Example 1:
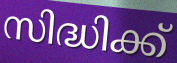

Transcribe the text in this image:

സിദ്ധിക്ക്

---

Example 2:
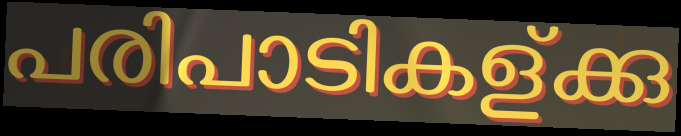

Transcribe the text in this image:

പരിപാടികള്ക്കു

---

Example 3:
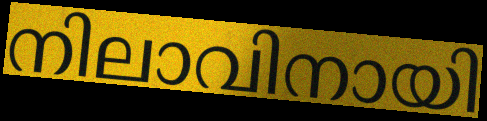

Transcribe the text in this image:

നിലാവിനായി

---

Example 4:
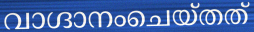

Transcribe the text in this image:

വാഗ്ദാനംചെയ്തത്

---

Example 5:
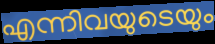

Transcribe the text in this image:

എന്നിവയുടെയും